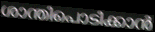
ശാന്തിപൊടിക്കാൻ